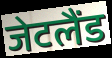
जेटलैंड